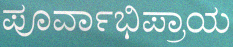
ಪೂರ್ವಾಭಿಪ್ರಾಯ